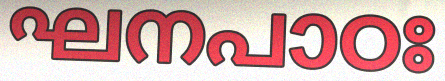
ഘനപാഠഃ